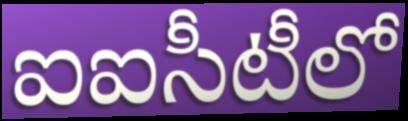
ఐఐసీటీలో